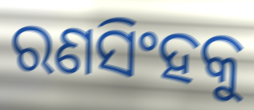
ରଣସିଂହକୁ